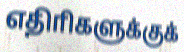
எதிரிகளுக்குக்